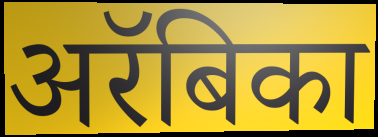
अरॅबिका